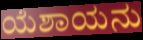
ಯೆಶಾಯನು